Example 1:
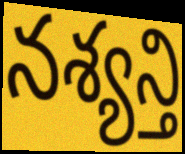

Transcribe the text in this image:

నశ్యన్తి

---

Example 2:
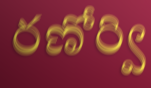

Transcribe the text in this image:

రణోర్వి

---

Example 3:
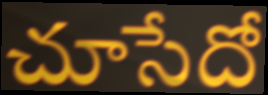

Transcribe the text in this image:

చూసేదో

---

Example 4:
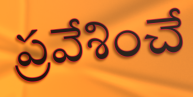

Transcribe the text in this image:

ప్రవేశించే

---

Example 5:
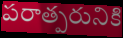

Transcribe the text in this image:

పరాత్పరునికి